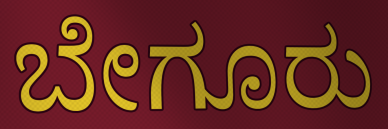
ಬೇಗೂರು